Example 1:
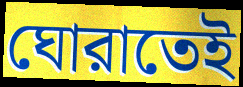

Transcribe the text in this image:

ঘোরাতেই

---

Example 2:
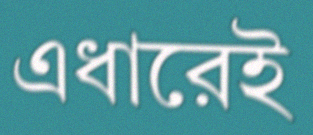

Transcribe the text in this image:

এধারেই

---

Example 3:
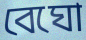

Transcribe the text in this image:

বেঘো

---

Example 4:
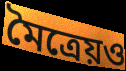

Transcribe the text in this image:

মৈত্রেয়ও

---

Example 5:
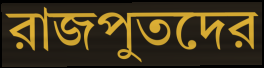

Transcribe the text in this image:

রাজপুতদের